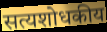
सत्यशोधकीय